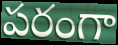
పరంగా